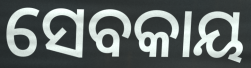
ସେବକାୟ